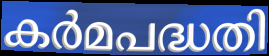
കർമപദ്ധതി